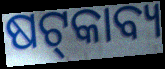
ଷଟ୍‌କାବ୍ୟ